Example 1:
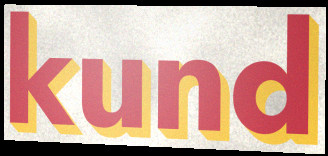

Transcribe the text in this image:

kund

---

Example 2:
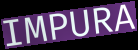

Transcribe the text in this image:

IMPURA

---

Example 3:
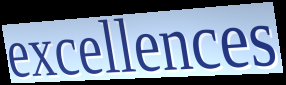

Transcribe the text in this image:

excellences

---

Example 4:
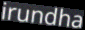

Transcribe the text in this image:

irundha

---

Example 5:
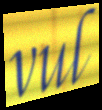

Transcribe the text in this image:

vul